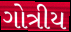
ગોત્રીય